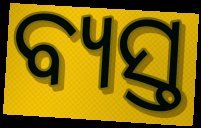
ବ୍ୟସ୍ତ